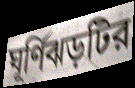
ঘূর্ণিঝড়টির